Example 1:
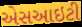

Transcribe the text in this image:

એસઆઇટી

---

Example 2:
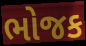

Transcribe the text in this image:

ભોજક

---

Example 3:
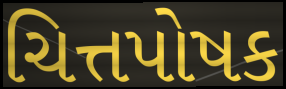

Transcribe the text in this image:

ચિત્તપોષક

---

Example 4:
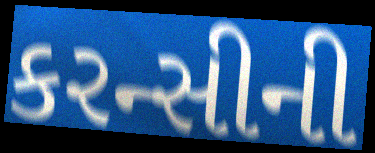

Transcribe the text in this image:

કરન્સીની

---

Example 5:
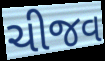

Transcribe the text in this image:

ચીજવ